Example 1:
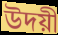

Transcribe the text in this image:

উদয়ী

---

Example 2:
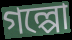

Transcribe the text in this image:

গল্পো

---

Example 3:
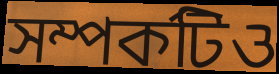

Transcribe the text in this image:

সম্পর্কটিও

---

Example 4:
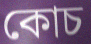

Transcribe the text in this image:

কোচ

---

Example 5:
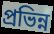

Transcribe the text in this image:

প্রভিন্ন